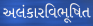
અલંકારવિભૂષિત